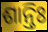
ଶାନ୍ତିଃ